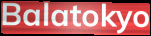
Balatokyo